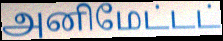
அனிமேட்டட்